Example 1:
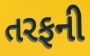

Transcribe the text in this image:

તરફની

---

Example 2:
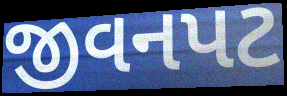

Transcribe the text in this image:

જીવનપટ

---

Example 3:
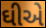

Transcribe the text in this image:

ઘીએ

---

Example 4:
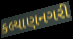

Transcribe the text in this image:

કલ્યાણનગરી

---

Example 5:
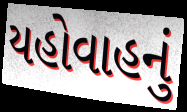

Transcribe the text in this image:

યહોવાહનું